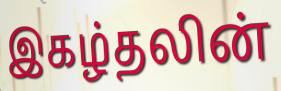
இகழ்தலின்